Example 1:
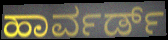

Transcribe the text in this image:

ಹಾರ್ವರ್ಡ್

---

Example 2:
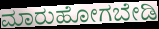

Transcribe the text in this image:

ಮಾರುಹೋಗಬೇಡಿ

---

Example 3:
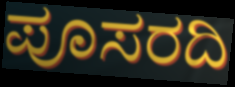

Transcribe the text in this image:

ಪೂಸರದಿ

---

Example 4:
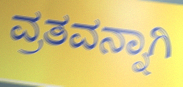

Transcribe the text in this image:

ವ್ರತವನ್ನಾಗಿ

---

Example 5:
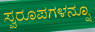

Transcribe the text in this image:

ಸ್ವರೂಪಗಳನ್ನೂ